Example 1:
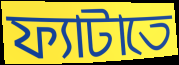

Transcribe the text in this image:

ফ্যাটাতে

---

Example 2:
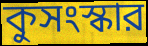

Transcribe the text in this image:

কুসংস্কার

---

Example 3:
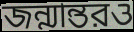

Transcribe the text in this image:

জন্মান্তরও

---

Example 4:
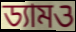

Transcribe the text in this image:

ড্যামও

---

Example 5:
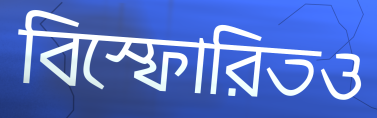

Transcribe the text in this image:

বিস্ফোরিতও